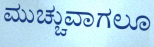
ಮುಚ್ಚುವಾಗಲೂ